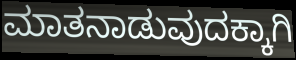
ಮಾತನಾಡುವುದಕ್ಕಾಗಿ